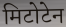
मिटोटेन